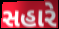
સહારે